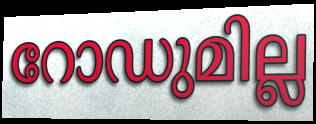
റോഡുമില്ല